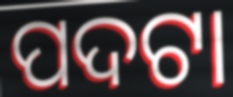
ପଦଟା